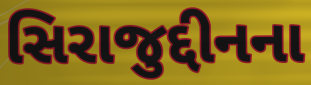
સિરાજુદ્દીનના